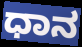
ಧಾನ